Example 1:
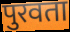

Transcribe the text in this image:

पुरवता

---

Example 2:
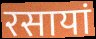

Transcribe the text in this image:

रसायां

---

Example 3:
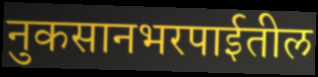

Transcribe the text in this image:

नुकसानभरपाईतील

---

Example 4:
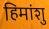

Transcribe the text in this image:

हिमांशु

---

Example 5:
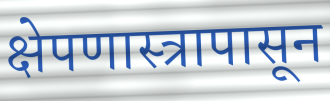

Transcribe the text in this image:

क्षेपणास्त्रापासून